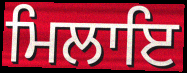
ਮਿਲਾਇ